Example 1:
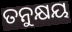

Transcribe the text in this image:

ତନୁକ୍ଷୟ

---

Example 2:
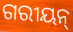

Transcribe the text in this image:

ଗରୀୟନ୍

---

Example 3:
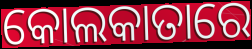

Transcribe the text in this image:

କୋଲକାତାରେ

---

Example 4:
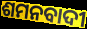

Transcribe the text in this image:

ଶମନବାଦୀ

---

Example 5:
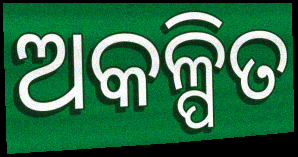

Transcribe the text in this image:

ଅକଳ୍ପିତ